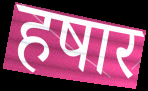
हषार